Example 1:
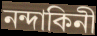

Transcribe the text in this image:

নন্দাকিনী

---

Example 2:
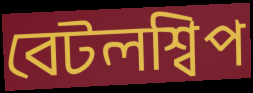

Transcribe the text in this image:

বেটলশ্বিপ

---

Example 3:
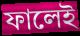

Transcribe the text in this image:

ফালেই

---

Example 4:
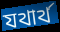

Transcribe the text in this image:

যথাৰ্থ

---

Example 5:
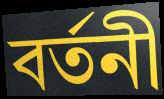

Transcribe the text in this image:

বৰ্তনী